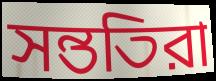
সন্ততিরা